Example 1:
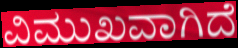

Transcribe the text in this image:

ವಿಮುಖವಾಗಿದೆ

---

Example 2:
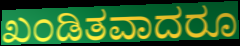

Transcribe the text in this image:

ಖಂಡಿತವಾದರೂ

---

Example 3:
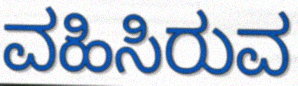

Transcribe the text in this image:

ವಹಿಸಿರುವ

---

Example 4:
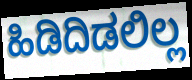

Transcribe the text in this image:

ಹಿಡಿದಿಡಲಿಲ್ಲ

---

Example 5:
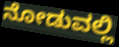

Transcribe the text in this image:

ನೋಡುವಲ್ಲಿ